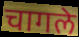
चागले